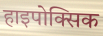
हाइपोक्सिक